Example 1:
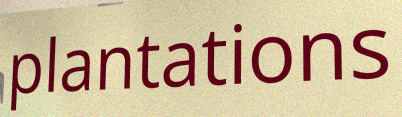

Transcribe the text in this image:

plantations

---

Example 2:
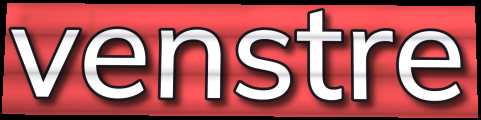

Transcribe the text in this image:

venstre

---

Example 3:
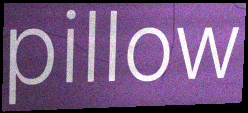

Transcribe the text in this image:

pillow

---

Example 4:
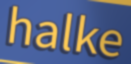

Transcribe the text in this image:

halke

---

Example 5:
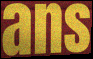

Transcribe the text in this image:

ans